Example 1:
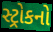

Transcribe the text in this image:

સ્ટ્રોકનો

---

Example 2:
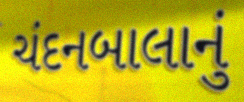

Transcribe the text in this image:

ચંદનબાલાનું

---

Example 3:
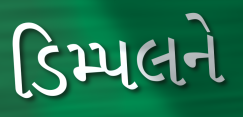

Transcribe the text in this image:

ડિમ્પલને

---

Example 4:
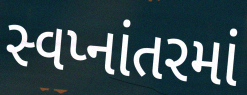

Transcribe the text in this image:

સ્વપ્નાંતરમાં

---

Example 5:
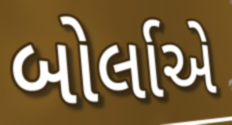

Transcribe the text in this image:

બોર્લાએ